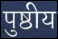
पुष्ठीय